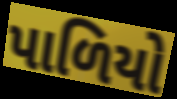
પાળિયો